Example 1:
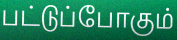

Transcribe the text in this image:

பட்டுப்போகும்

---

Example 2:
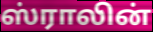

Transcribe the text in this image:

ஸ்ராலின்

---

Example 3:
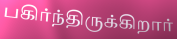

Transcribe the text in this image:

பகிர்ந்திருக்கிறார்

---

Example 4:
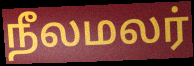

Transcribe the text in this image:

நீலமலர்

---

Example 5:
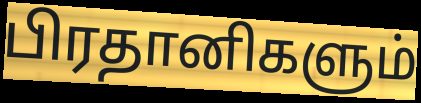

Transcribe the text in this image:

பிரதானிகளும்